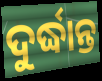
ଦୁର୍ଦ୍ଧାନ୍ତ